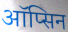
ऑप्सिन